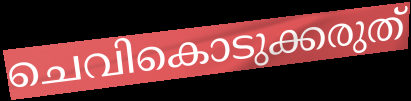
ചെവികൊടുക്കരുത്